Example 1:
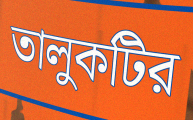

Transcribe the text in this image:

তালুকটির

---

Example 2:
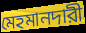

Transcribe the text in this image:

মেহমানদারী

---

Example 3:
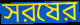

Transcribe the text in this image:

সরষের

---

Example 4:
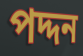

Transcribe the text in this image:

পদ্দন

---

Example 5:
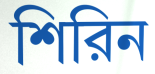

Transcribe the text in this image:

শিরিন